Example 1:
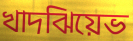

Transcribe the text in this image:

খাদঝিয়েভ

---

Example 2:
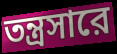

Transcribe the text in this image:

তন্ত্রসারে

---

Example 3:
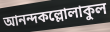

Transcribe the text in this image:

আনন্দকল্লোলাকুল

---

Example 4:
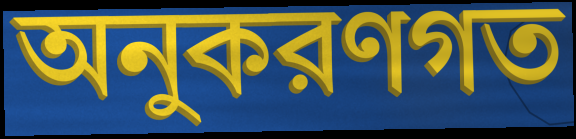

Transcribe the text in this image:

অনুকরণগত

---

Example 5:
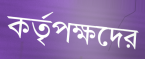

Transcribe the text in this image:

কর্তৃপক্ষদের